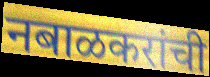
नबाळकरांची